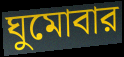
ঘুমোবার